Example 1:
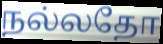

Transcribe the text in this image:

நல்லதோ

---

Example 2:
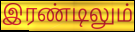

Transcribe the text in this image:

இரண்டிலும்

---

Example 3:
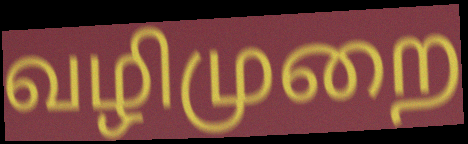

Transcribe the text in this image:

வழிமுறை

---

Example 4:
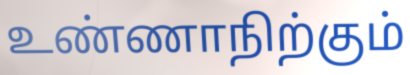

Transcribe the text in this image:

உண்ணாநிற்கும்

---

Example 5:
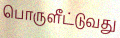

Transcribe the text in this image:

பொருளீட்டுவது